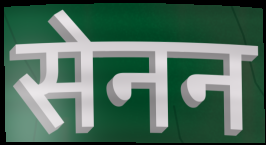
सेनन